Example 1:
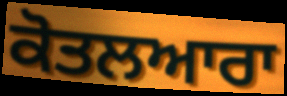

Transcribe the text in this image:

ਕੋਤਲਆਰਾ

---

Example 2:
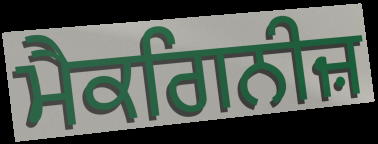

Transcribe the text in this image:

ਮੈਕਗਿਨੀਜ਼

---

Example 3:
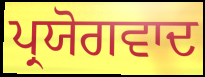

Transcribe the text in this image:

ਪ੍ਰਯੋਗਵਾਦ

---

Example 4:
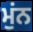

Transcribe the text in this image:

ਮੁਂਨ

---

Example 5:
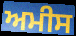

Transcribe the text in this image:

ਅਮੀਸ